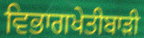
ਵਿਭਾਗਖੇਤੀਬਾੜੀ